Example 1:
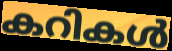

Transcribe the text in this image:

കറികൾ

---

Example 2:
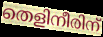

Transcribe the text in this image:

തെളിനീരിന്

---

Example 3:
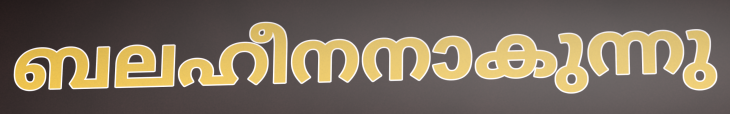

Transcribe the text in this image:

ബലഹീനനാകുന്നു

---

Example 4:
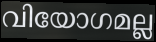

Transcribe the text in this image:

വിയോഗമല്ല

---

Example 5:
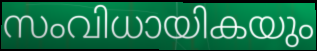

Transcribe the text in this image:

സംവിധായികയും